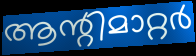
ആന്റിമാറ്റർ